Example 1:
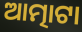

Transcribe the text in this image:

ଆତ୍ମାଟା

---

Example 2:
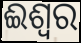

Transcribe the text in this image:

ଈଶ୍ୱର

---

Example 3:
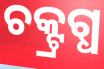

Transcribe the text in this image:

ଚକ୍ଟ୍ରଗ୍ଧ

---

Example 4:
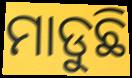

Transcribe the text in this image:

ମାଡୁଛି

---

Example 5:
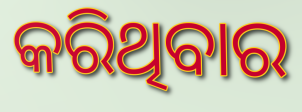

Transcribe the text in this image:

କରିଥିବାର